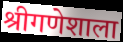
श्रीगणेशाला